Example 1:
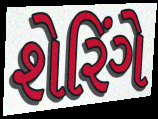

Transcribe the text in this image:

શેરિંગે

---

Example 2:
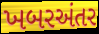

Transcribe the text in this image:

ખબરઅંતર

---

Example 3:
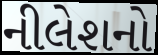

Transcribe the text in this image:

નીલેશનો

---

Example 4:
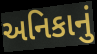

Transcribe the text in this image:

અનિકાનું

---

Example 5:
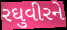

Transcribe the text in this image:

રઘુવીરને